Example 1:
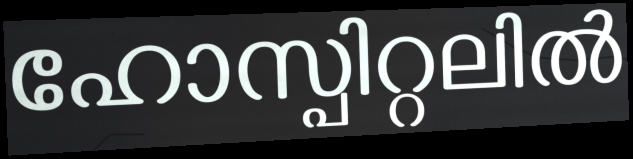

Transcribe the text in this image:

ഹോസ്പിറ്റലിൽ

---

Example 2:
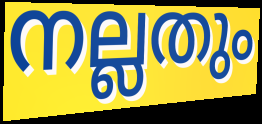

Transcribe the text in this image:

നല്ലതും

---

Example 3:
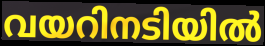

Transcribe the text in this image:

വയറിനടിയിൽ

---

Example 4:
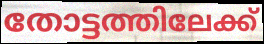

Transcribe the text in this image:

തോട്ടത്തിലേക്ക്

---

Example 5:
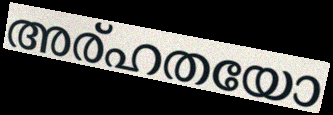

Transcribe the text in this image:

അര്ഹതയോ